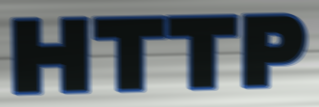
HTTP